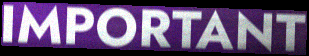
IMPORTANT